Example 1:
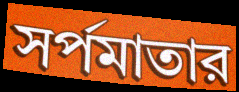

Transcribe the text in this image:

সর্পমাতার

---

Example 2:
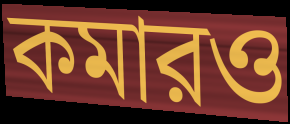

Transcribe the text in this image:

কমারও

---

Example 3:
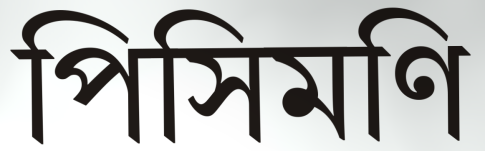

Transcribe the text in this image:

পিসিমণি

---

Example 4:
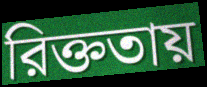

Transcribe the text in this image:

রিক্ততায়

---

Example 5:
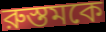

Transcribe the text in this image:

রুস্তমকে